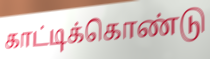
காட்டிக்கொண்டு